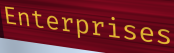
Enterprises